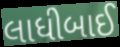
લાધીબાઈ